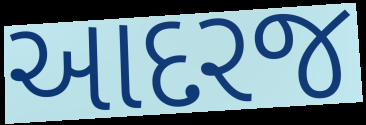
આદરજ